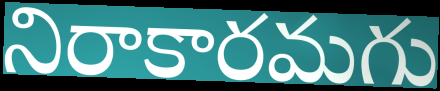
నిరాకారమగు